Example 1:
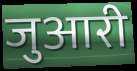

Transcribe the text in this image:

जुआरी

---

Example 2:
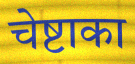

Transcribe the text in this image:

चेष्टाका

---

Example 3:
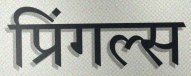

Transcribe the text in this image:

प्रिंगल्स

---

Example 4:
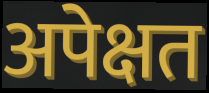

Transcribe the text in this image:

अपेक्षत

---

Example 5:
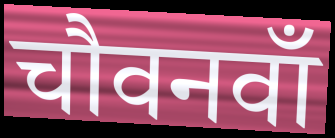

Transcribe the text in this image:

चौवनवाँ